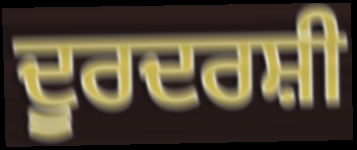
ਦੂਰਦਰਸ਼ੀ